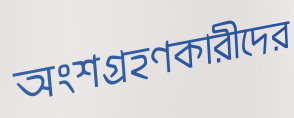
অংশগ্রহণকারীদের